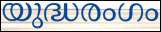
യുദ്ധരംഗം